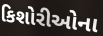
કિશોરીઓના